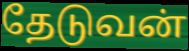
தேடுவன்